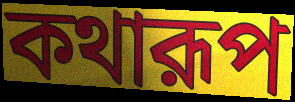
কথারূপ